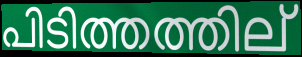
പിടിത്തത്തില്